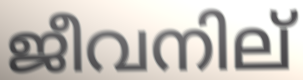
ജീവനില്